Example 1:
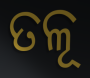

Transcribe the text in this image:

ତଳୂ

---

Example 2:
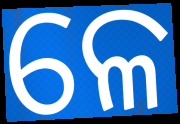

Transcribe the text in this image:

ଳେ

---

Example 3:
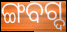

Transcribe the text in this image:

ଙ୍ଗବଗ୍ଦ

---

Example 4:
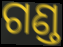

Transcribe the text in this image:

ଗଣ୍ଡ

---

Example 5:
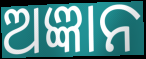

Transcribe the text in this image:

ଅଜ୍ଞାନ